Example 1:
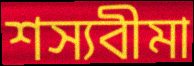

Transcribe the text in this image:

শস্যবীমা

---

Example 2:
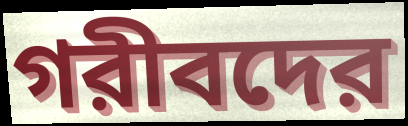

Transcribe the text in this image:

গরীবদের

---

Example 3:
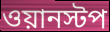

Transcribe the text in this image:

ওয়ানস্টপ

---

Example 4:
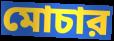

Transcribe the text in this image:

মোচার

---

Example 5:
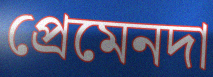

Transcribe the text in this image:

প্রেমেনদা